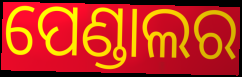
ପେଣ୍ଡାଲର